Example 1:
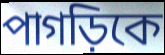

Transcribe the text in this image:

পাগড়িকে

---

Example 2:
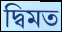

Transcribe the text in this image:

দ্বিমত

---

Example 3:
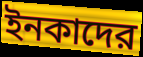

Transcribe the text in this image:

ইনকাদের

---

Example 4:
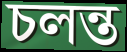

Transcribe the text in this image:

চলন্ত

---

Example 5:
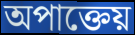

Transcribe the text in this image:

অপাক্তেয়